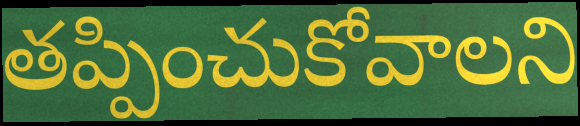
తప్పించుకోవాలని